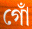
গোঁ